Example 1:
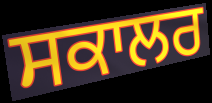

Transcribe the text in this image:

ਸਕਾਲਰ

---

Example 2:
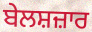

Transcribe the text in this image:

ਬੇਲਸ਼ਜ਼ਾਰ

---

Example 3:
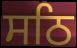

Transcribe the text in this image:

ਸਠਿ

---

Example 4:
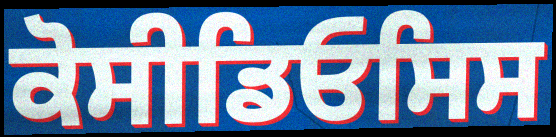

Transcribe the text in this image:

ਕੋਸੀਡਿਓਸਿਸ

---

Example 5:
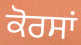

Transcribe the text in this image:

ਕੋਰਸਾਂ